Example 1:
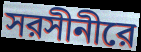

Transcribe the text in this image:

সরসীনীরে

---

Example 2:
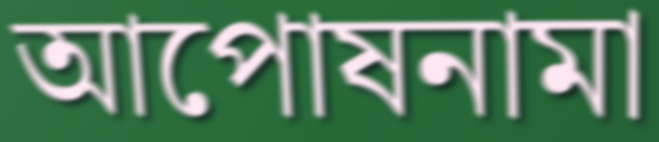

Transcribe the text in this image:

আপোষনামা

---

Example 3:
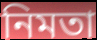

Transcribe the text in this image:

নিমতা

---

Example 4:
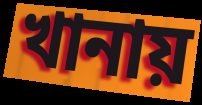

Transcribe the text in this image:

খানায়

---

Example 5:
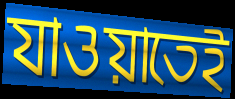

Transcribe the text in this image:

যাওয়াতেই